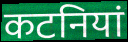
कटनियां